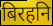
बिरहनि